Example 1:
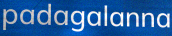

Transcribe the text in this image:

padagalanna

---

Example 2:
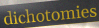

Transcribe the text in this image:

dichotomies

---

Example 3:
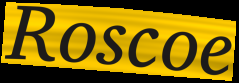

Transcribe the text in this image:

Roscoe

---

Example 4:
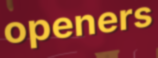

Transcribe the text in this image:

openers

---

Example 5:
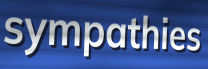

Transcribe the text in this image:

sympathies